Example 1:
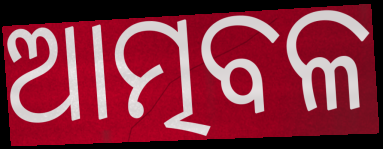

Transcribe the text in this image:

ଆତ୍ମବଳ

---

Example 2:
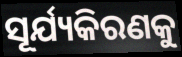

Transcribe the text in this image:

ସୂର୍ଯ୍ୟକିରଣକୁ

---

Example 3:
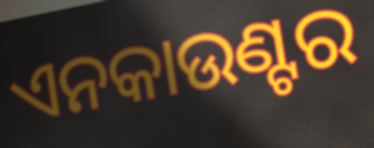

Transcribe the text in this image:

ଏନକାଉଣ୍ଟର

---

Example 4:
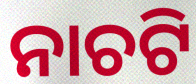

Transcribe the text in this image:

ନାଚଟି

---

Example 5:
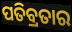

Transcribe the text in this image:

ପତିବ୍ରତାର